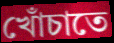
খোঁচাতে